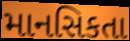
માનસિકતા